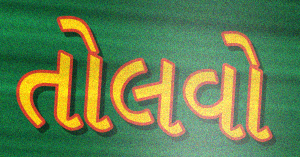
તોલવો